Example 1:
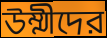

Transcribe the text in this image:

উম্মীদের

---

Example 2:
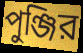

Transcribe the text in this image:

পুঞ্জির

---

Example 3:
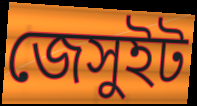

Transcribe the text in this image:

জেসুইট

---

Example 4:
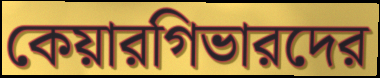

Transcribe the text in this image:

কেয়ারগিভারদের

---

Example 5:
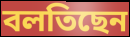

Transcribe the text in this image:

বলতিছেন